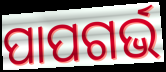
ପାପଗର୍ଭ